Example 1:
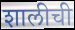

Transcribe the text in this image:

शालीची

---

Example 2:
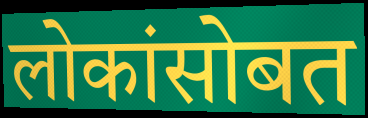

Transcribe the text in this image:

लोकांसोबत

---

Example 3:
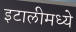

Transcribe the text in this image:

इटालीमध्ये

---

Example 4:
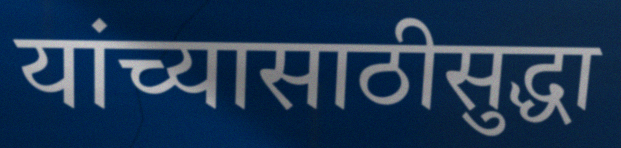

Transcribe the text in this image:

यांच्यासाठीसुद्धा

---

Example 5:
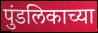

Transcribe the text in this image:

पुंडलिकाच्या